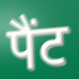
पैंट